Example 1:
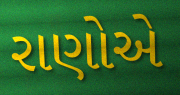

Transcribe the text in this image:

રાણોએ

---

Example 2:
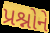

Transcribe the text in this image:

પ્રશ્નોને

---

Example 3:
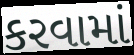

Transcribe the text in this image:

કરવામાં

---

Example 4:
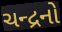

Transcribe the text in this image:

ચન્દ્રનો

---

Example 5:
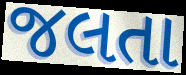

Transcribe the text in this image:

જલતા